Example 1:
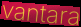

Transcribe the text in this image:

vantara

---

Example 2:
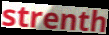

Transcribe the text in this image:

strenth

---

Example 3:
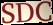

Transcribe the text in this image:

SDC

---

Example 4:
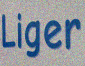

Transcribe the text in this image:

Liger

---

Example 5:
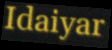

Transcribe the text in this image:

Idaiyar